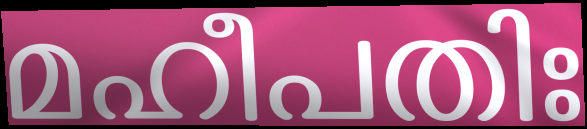
മഹീപതിഃ